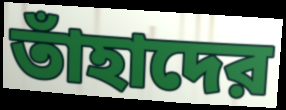
তাঁহাদের